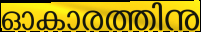
ഓകാരത്തിനു